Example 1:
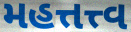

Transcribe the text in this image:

મહત્તત્ત્વ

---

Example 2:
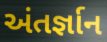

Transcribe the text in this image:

અંતર્જ્ઞાન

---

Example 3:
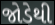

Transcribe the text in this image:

જોડેથી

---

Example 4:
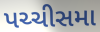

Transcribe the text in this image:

પચ્ચીસમા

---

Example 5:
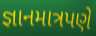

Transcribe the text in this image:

જ્ઞાનમાત્રપણે